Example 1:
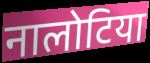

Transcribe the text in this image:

नालोटिया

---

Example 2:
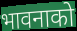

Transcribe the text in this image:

भावनाको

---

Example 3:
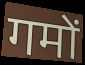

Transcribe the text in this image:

गमों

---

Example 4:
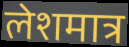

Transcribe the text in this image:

लेशमात्र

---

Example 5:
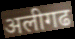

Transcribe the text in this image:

अलीगढ